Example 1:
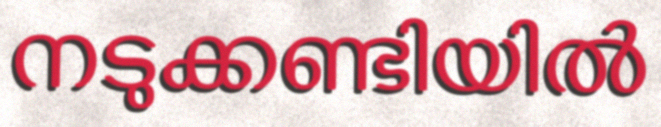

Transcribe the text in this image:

നടുക്കണ്ടിയിൽ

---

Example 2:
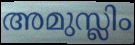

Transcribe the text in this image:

അമുസ്ലിം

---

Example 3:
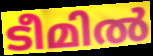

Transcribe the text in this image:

ടീമിൽ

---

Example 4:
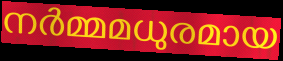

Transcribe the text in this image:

നർമ്മമധുരമായ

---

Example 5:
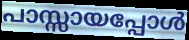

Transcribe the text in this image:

പാസ്സായപ്പോൾ